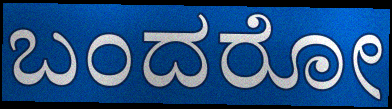
ಬಂದರೋ